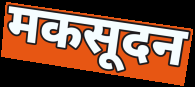
मकसूदन